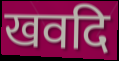
खवदि